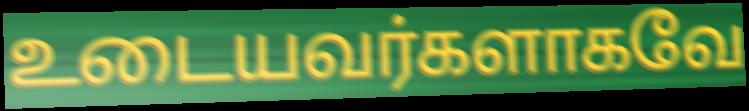
உடையவர்களாகவே